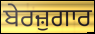
ਬੇਰਜ਼ੁਗਾਰ